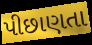
પીછાણતા